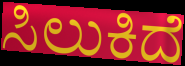
ಸಿಲುಕಿದೆ